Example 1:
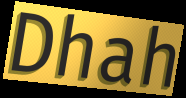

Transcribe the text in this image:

Dhah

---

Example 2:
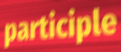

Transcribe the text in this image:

participle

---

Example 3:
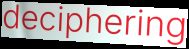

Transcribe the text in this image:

deciphering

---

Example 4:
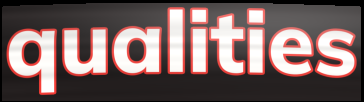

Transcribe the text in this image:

qualities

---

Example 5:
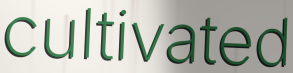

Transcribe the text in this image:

cultivated